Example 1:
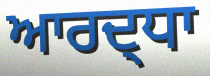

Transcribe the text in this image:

ਆਰਦ੍ਧਾ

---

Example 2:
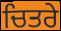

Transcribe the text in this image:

ਚਿਤਰੇ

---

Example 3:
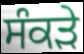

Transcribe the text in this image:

ਸੰਕੜੇ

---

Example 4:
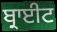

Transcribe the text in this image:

ਬ੍ਰਾਈਟ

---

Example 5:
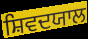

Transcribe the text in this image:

ਸ਼ਿਵਦਯਾਲ